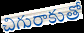
చిగురాకుతో